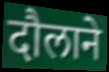
दौलाने